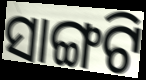
ସାଙ୍ଗଟି